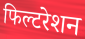
फिल्टरेशन